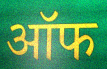
ऑफ